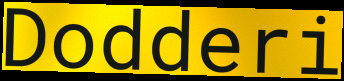
Dodderi